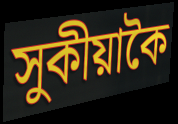
সুকীয়াকৈ